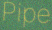
Pipe